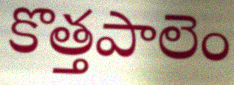
కొత్తపాలెం